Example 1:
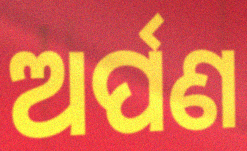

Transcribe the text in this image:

ଅର୍ପଣ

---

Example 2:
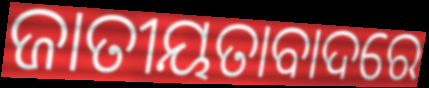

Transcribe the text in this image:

ଜାତୀୟତାବାଦରେ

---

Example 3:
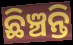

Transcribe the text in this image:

ଛିଞ୍ଚନ୍ତି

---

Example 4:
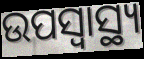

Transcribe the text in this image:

ଉପସ୍ୱାସ୍ଥ୍ୟ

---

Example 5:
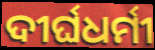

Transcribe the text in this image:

ଦୀର୍ଘଧର୍ମୀ